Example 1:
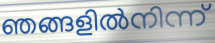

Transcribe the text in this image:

ഞങ്ങളിൽനിന്ന്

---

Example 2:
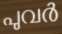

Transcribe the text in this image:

പുവർ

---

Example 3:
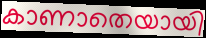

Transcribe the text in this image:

കാണാതെയായി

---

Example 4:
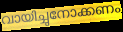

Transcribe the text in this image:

വായിച്ചുനോക്കണം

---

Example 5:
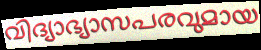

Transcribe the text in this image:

വിദ്യാഭ്യാസപരവുമായ